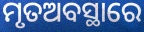
ମୃତଅବସ୍ଥାରେ